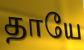
தாயே